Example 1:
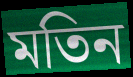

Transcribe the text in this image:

মতিন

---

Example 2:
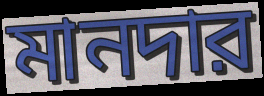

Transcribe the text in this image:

মানদার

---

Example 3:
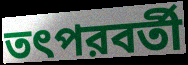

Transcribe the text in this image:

তৎপরবর্তী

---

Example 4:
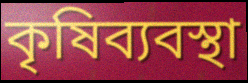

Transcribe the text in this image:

কৃষিব্যবস্থা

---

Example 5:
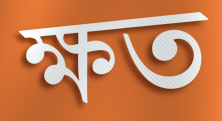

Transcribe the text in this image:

ক্ষত